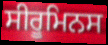
ਸੀਰੂਮਿਨਸ